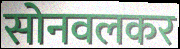
सोनवलकर